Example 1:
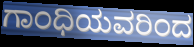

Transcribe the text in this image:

ಗಾಂಧಿಯವರಿಂದ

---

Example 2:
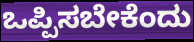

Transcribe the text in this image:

ಒಪ್ಪಿಸಬೇಕೆಂದು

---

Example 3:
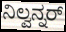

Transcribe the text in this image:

ನಿಲ್ವನ್ನರ್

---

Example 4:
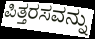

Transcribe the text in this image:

ಪಿತ್ತರಸವನ್ನು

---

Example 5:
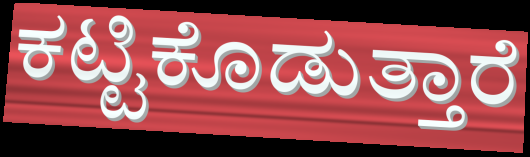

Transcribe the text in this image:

ಕಟ್ಟಿಕೊಡುತ್ತಾರೆ